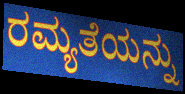
ರಮ್ಯತೆಯನ್ನು